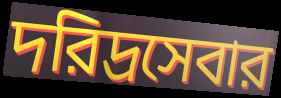
দরিদ্রসেবার